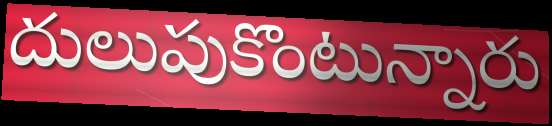
దులుపుకొంటున్నారు